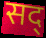
सद्